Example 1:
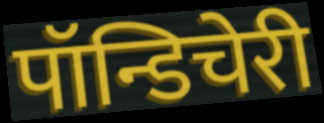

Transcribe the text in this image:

पॉन्डिचेरी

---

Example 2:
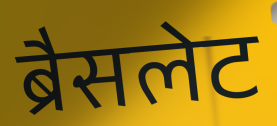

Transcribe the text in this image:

ब्रैसलेट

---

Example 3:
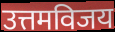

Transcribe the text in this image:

उत्तमविजय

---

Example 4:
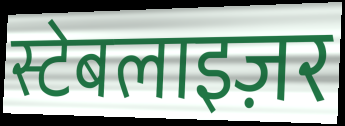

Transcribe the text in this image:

स्टेबलाइज़र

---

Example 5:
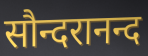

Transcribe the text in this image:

सौन्दरानन्द